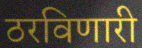
ठरविणारी